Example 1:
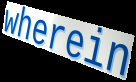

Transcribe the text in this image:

wherein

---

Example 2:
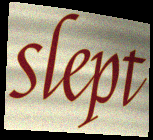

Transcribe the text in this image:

slept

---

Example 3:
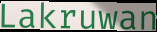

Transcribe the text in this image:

Lakruwan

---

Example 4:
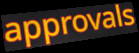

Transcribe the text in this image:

approvals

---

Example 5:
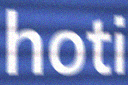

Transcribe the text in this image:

hoti